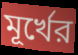
মূর্খের